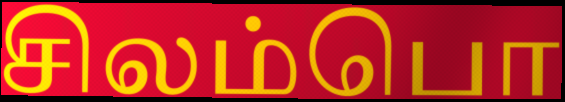
சிலம்பொ